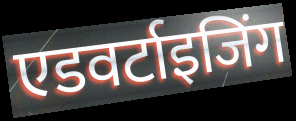
एडवर्टाइजिंग